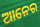
ଆନେର